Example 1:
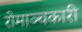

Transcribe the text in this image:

रोमाञ्चकारी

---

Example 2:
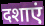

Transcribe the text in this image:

दशाएं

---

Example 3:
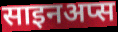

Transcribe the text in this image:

साइनअप्स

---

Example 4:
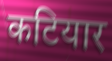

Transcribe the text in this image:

कटियार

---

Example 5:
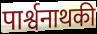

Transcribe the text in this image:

पार्श्वनाथकी